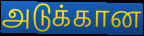
அடுக்கான